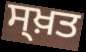
ਸ੍ਖ਼ਤ